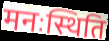
मनःस्थिति